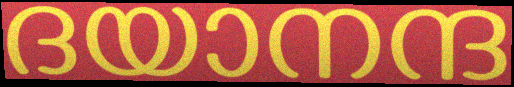
ദയാനന്ദ